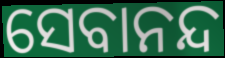
ସେବାନନ୍ଦ